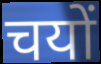
चयों